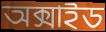
অক্সাইড